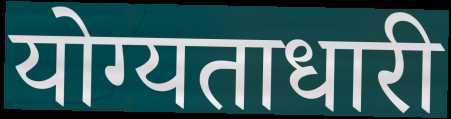
योग्यताधारी